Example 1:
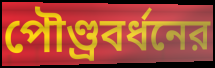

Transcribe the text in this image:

পৌণ্ড্রবর্ধনের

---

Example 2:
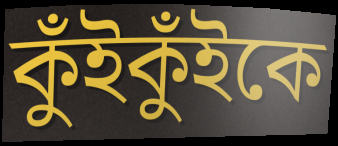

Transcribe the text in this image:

কুঁইকুঁইকে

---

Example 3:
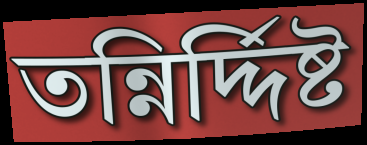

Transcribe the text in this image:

তন্নির্দ্দিষ্ট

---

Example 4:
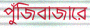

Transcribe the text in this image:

পুঁজিবাজারে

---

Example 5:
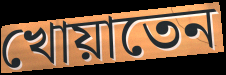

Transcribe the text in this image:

খোয়াতেন